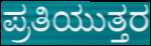
ಪ್ರತಿಯುತ್ತರ